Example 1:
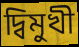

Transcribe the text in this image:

দ্বিমুখী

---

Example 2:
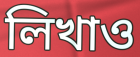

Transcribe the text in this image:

লিখাও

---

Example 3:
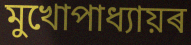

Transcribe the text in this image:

মুখোপাধ্যায়ৰ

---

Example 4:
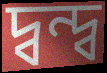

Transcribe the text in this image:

দ্বন্দ্ব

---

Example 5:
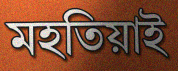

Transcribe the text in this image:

মহতিয়াই